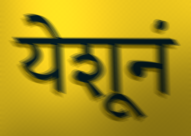
येशूनं